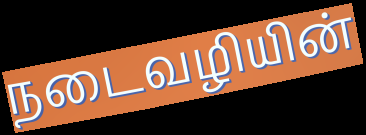
நடைவழியின்